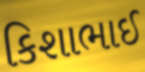
કિશાભાઈ